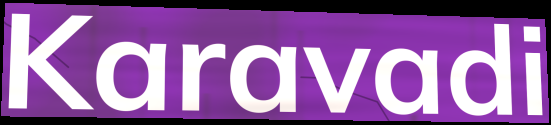
Karavadi